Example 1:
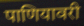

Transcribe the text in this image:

पाणियावरी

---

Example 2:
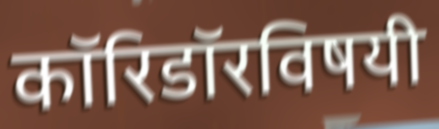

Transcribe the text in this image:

कॉरिडॉरविषयी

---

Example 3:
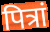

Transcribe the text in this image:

पित्रां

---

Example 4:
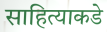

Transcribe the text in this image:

साहित्याकडे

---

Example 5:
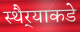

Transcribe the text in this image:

स्थैर्याकडे